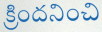
క్రిందనించి